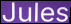
Jules